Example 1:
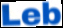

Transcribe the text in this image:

Leb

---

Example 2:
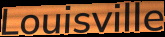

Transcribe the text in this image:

Louisville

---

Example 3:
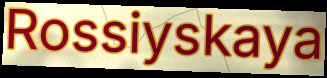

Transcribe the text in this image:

Rossiyskaya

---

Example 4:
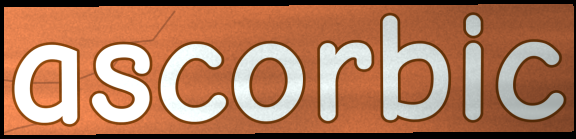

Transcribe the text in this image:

ascorbic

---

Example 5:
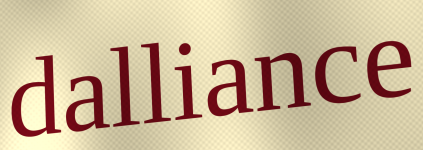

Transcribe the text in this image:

dalliance